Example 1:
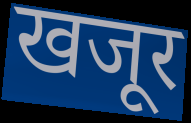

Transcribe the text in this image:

खजूर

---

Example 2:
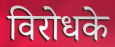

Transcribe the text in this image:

विरोधके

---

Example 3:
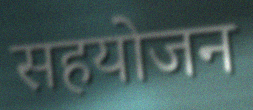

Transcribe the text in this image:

सहयोजन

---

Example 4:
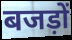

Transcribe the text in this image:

बजड़ों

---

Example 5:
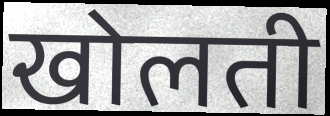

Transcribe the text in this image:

खोलती